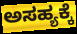
ಅಸಹ್ಯಕ್ಕೆ